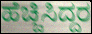
ಹೆಚ್ಚಿಸಿದ್ದರ